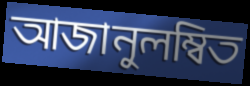
আজানুলম্বিত